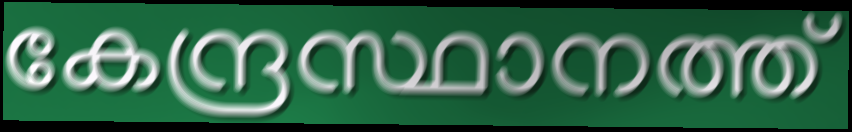
കേന്ദ്രസ്ഥാനത്ത്